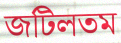
জটিলতম